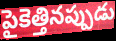
పైకెత్తినప్పుడు